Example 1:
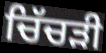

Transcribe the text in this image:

ਚਿੱਚੜੀ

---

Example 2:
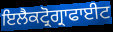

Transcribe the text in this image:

ਇਲੈਕਟ੍ਰੋਗ੍ਰਾਫਾਈਟ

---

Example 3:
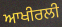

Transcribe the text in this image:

ਆਖੀਰਲੀ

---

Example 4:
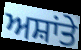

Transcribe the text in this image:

ਅਸ਼ਾਂਤੇ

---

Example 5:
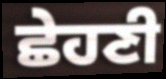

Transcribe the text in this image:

ਛੇਹਣੀ